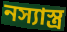
নস্যাস্ত্র